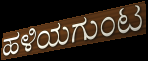
ಹಳಿಯಗುಂಟ